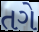
તગે